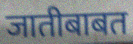
जातीबाबत